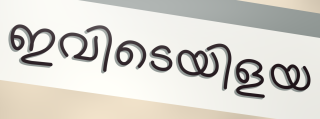
ഇവിടെയിളയ